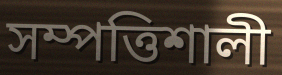
সম্পত্তিশালী